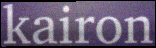
kairon